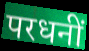
परधनीं